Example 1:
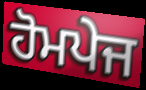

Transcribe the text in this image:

ਹੋਮਪੇਜ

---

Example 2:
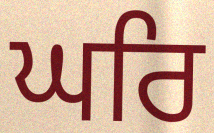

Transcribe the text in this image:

ਘਰਿ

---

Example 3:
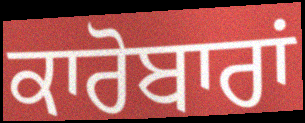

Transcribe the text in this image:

ਕਾਰੋਬਾਰਾਂ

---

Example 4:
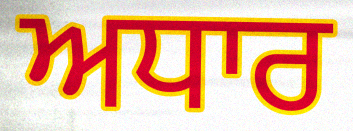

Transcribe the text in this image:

ਅਧਾਰ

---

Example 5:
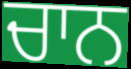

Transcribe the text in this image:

ਚਾਨ